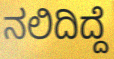
ನಲಿದಿದ್ದೆ